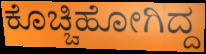
ಕೊಚ್ಚಿಹೋಗಿದ್ದ